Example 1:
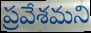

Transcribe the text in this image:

ప్రవేశమని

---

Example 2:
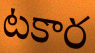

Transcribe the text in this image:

టకార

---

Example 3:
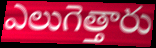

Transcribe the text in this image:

ఎలుగెత్తారు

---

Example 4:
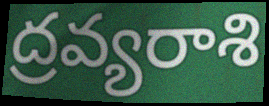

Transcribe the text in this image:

ద్రవ్యరాశి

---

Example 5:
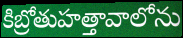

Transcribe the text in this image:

కిబ్రోతుహత్తావాలోను